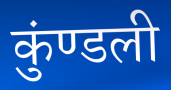
कुंण्डली